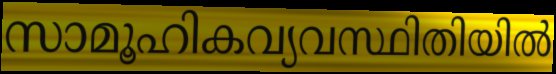
സാമൂഹികവ്യവസ്ഥിതിയിൽ